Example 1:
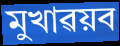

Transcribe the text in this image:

মুখাৱয়ব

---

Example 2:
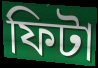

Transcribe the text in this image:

ফিটা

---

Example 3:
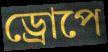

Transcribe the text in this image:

ড্ৰোপে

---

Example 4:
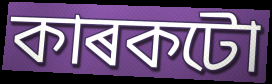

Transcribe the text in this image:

কাৰকটো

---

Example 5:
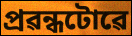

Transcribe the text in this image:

প্ৰৱন্ধটোৱে